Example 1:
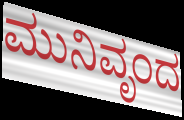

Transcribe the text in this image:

ಮುನಿವೃಂದ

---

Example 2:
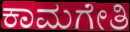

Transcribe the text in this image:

ಕಾಮಗೇತಿ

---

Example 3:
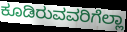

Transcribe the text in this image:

ಕೂಡಿರುವವರಿಗೆಲ್ಲಾ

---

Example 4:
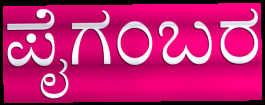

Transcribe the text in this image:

ಪೈಗಂಬರ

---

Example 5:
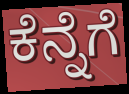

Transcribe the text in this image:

ಕೆನ್ನೆಗೆ